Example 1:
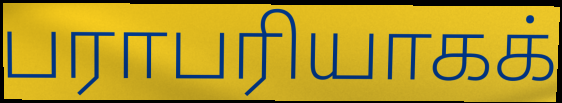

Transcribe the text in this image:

பராபரியாகக்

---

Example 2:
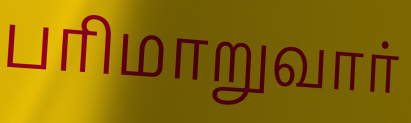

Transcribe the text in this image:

பரிமாறுவார்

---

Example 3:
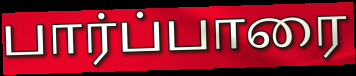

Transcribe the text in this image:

பார்ப்பாரை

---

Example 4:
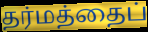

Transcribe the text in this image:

தர்மத்தைப்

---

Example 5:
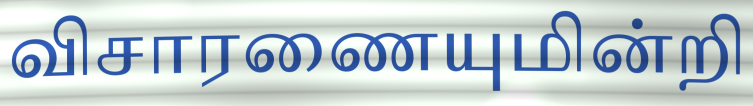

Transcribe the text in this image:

விசாரணையுமின்றி